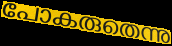
പോകരുതെന്നു